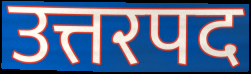
उत्तरपद